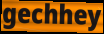
gechhey